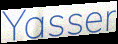
Yasser